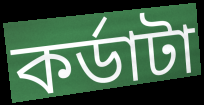
কর্ডাটা